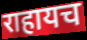
राहायच